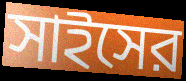
সাইসের